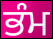
ਭੰਮ